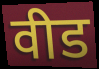
वीड